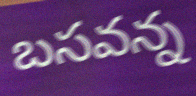
బసవన్న